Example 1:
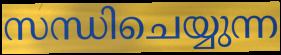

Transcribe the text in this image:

സന്ധിചെയ്യുന്ന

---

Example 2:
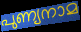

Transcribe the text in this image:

പുണ്യനാമ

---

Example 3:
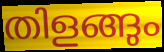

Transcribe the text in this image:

തിളങ്ങും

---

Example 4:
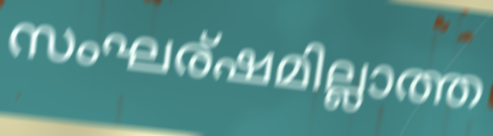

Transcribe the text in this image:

സംഘര്ഷമില്ലാത്ത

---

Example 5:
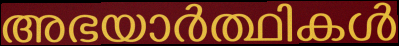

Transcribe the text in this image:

അഭയാർത്ഥികൾ